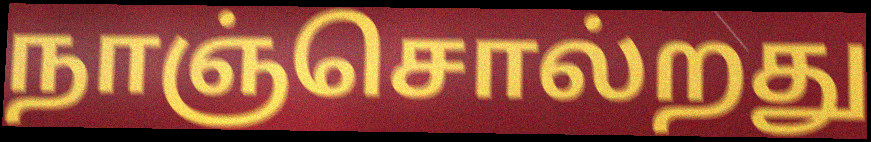
நாஞ்சொல்றது